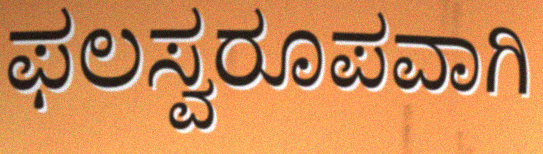
ಫಲಸ್ವರೂಪವಾಗಿ